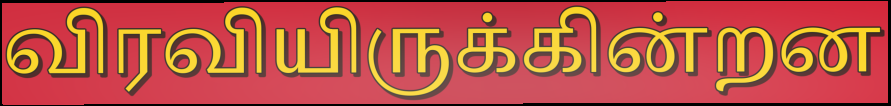
விரவியிருக்கின்றன